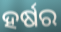
ହର୍ଷର